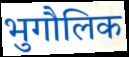
भुगौलिक